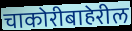
चाकोरीबाहेरील